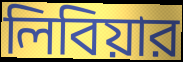
লিবিয়ার